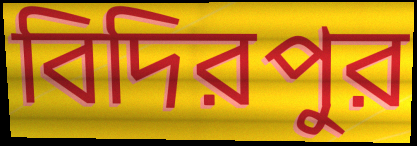
বিদিরপুর